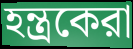
হন্ত্রকেরা